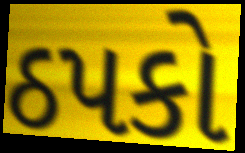
ઠપકો